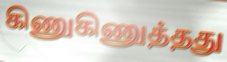
கிணுகிணுத்தது